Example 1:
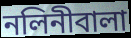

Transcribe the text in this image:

নলিনীবালা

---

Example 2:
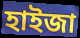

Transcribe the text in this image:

হাইজা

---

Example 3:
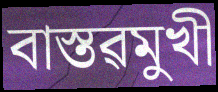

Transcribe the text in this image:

বাস্তৱমুখী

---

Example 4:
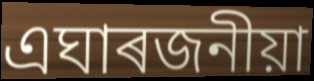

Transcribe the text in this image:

এঘাৰজনীয়া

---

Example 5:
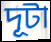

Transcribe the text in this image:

দূটা